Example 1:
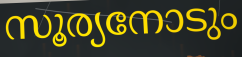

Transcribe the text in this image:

സൂര്യനോടും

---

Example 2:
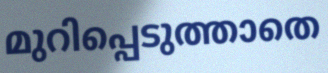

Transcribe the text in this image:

മുറിപ്പെടുത്താതെ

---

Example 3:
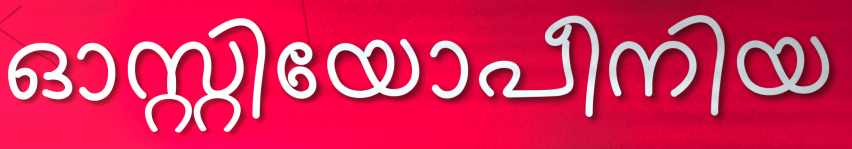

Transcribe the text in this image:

ഓസ്റ്റിയോപീനിയ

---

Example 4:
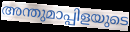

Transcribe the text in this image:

അന്തുമാപ്പിളയുടെ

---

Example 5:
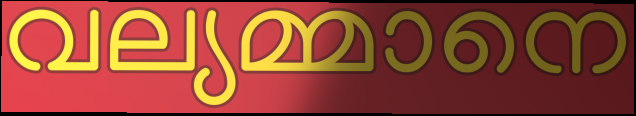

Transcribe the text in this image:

വല്യമ്മാനെ